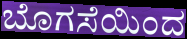
ಬೊಗಸೆಯಿಂದ